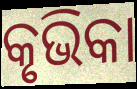
କୃଭିକା